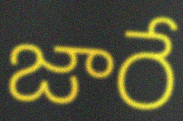
జారే